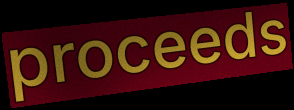
proceeds